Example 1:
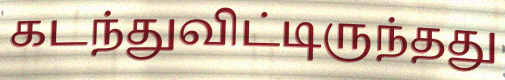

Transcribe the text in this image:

கடந்துவிட்டிருந்தது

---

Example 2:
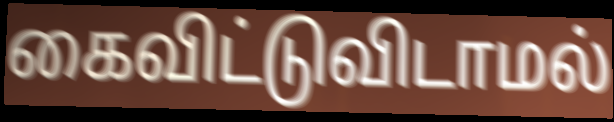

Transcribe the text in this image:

கைவிட்டுவிடாமல்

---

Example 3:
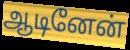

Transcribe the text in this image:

ஆடினேன்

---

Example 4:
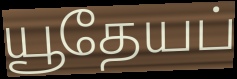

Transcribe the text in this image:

யூதேயப்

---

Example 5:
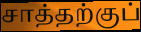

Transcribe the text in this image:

சாத்தற்குப்